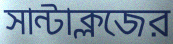
সান্টাক্লজের